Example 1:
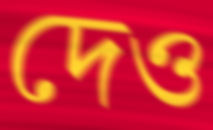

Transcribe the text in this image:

দেও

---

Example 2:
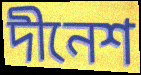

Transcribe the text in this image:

দীনেশ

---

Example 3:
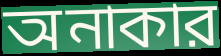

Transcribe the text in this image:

অনাকার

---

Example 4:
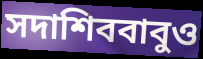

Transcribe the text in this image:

সদাশিববাবুও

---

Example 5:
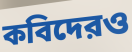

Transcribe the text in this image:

কবিদেরও